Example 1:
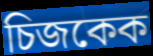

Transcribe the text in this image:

চিজকেক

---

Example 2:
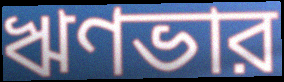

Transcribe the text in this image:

ঋণভার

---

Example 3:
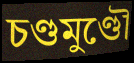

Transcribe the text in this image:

চণ্ডমুণ্ডৌ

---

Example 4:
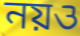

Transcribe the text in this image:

নয়ও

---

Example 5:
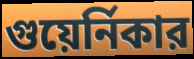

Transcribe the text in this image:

গুয়ের্নিকার